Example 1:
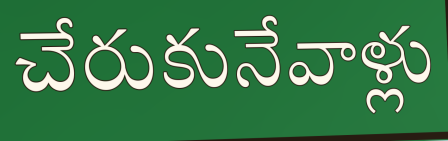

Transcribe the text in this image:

చేరుకునేవాళ్లు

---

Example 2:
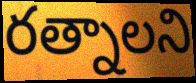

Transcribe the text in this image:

రత్నాలని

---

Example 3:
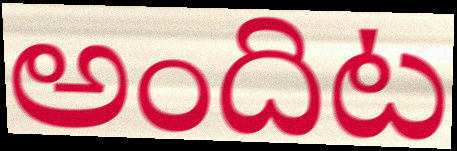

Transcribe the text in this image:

అందిట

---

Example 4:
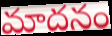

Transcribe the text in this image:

మాదనం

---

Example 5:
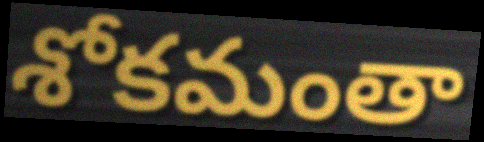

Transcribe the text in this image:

శోకమంతా